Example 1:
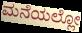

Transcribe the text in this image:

ಮನೆಯಲ್ಲೋ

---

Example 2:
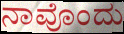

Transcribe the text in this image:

ನಾವೊಂದು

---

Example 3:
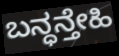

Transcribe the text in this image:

ಬನ್ಧನ್ತೇಹಿ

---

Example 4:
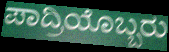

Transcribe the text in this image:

ಪಾದ್ರಿಯೊಬ್ಬರು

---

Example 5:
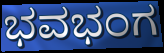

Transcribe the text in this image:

ಭವಭಂಗ